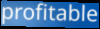
profitable